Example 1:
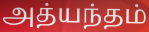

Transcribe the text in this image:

அத்யந்தம்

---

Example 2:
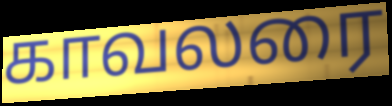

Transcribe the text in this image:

காவலரை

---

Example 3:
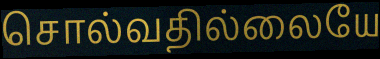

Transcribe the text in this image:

சொல்வதில்லையே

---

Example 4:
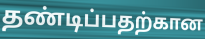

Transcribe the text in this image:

தண்டிப்பதற்கான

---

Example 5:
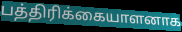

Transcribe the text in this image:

பத்திரிக்கையாளனாக